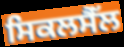
ਸਿਕਲਸੈੱਲ